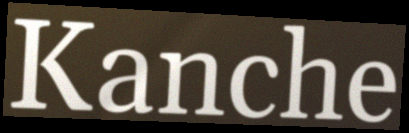
Kanche